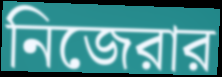
নিজেরার